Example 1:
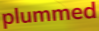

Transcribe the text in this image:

plummed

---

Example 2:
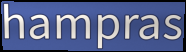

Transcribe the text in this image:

hampras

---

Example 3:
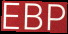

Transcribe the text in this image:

EBP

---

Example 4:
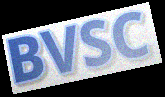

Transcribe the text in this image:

BVSC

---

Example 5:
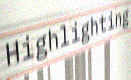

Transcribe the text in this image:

Highlighting